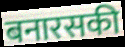
बनारसकी